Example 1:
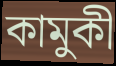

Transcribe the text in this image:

কামুকী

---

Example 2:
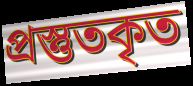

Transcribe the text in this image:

প্রস্তুতকৃত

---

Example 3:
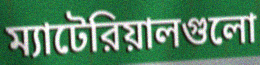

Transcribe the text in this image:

ম্যাটেরিয়ালগুলো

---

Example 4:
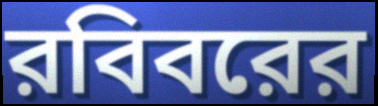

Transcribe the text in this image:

রবিবরের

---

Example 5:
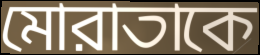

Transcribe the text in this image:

মোরাতাকে